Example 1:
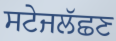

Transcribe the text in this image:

ਸਟੇਜਲੱਛਣ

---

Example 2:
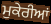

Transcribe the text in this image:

ਮੁਕੇਰੀਆਂ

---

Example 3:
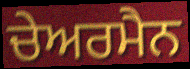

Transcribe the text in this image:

ਚੇਅਰਮੈਨ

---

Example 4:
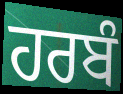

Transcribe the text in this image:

ਹਰਬੰ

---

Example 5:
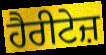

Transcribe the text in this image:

ਹੈਰੀਟੇਜ਼